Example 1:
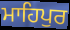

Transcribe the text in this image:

ਮਾਹਿਪੁਰ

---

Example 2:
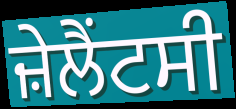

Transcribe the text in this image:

ਜ਼ੇਲੈਂਟਸੀ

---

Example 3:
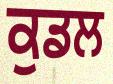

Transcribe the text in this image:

ਕੁਡਲ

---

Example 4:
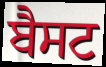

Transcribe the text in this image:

ਬੈਸਟ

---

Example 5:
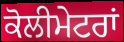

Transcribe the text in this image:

ਕੋਲੀਮੇਟਰਾਂ